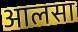
आलसा